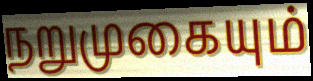
நறுமுகையும்